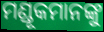
ମଣ୍ଡୂକମାନଙ୍କୁ